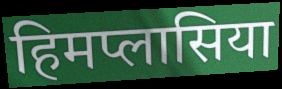
हिमप्लासिया